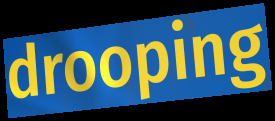
drooping